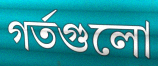
গর্তগুলো